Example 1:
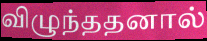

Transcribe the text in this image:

விழுந்ததனால்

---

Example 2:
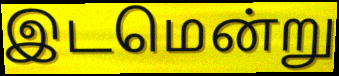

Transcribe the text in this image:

இடமென்று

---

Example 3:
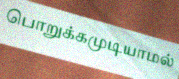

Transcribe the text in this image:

பொறுக்கமுடியாமல்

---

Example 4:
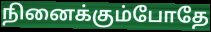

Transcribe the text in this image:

நினைக்கும்போதே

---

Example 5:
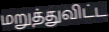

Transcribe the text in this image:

மறுத்துவிட்ட